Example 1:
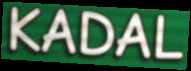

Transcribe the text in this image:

KADAL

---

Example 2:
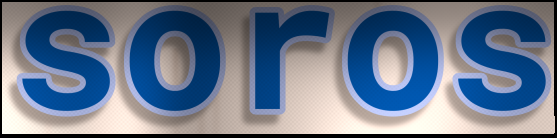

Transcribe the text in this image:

soros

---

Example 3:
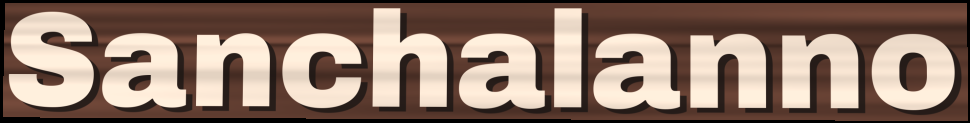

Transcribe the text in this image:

Sanchalanno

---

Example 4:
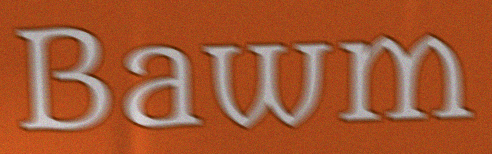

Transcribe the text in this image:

Bawm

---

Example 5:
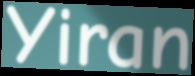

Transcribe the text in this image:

Yiran